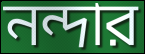
নন্দার